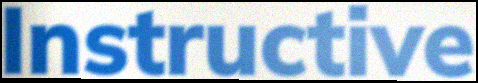
Instructive